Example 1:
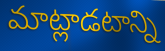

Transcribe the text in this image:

మాట్లాడటాన్ని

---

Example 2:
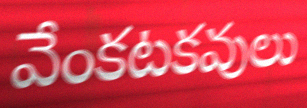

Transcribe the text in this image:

వేంకటకవులు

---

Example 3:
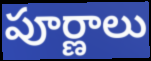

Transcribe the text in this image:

పూర్ణాలు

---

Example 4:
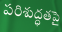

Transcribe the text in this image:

పరిశుద్ధతపై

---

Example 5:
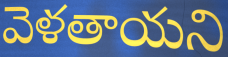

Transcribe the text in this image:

వెళతాయని